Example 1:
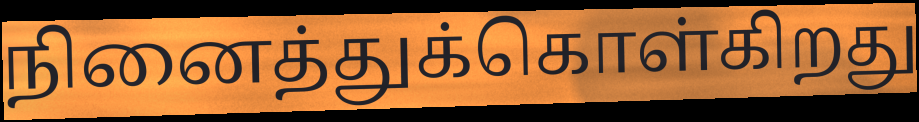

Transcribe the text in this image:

நினைத்துக்கொள்கிறது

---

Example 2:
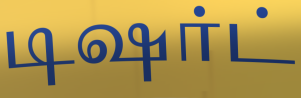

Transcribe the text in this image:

டிஷர்ட்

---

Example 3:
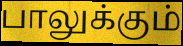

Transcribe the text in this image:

பாலுக்கும்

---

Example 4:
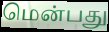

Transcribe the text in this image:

மென்பது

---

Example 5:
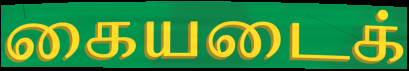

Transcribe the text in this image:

கையடைக்